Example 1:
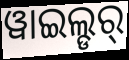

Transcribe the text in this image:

ୱାଇଲ୍ଡର୍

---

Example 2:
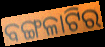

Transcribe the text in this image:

ବଙ୍ଗଳାଟିର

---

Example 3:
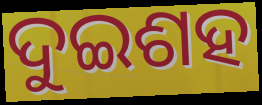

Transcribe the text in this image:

ଦୁଇଶହ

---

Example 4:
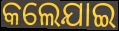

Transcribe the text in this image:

କଲେଯାଇ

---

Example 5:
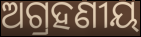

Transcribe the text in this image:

ଅଗ୍ରହଣୀୟ